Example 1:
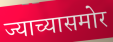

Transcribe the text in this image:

ज्याच्यासमोर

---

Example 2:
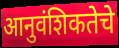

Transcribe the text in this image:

आनुवंशिकतेचे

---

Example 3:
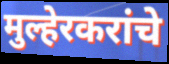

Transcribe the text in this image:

मुल्हेरकरांचे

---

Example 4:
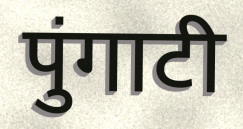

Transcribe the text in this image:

पुंगाटी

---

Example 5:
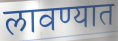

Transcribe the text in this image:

लावण्यात